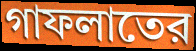
গাফলাতের